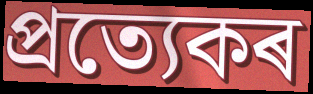
প্ৰত্যেকৰ